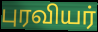
புரவியர்